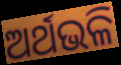
ଅର୍ଥଭଳି